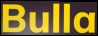
Bulla